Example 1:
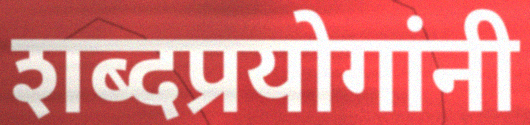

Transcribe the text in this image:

शब्दप्रयोगांनी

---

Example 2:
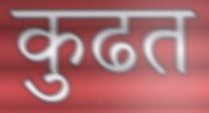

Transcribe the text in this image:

कुढत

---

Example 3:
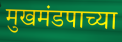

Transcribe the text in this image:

मुखमंडपाच्या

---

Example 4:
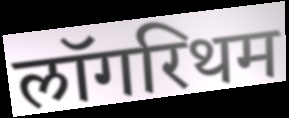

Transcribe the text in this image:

लॉगरिथम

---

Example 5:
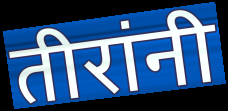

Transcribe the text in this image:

तीरांनी